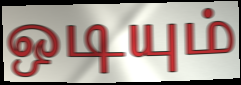
ஒடியும்